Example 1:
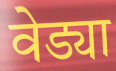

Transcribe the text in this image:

वेड्या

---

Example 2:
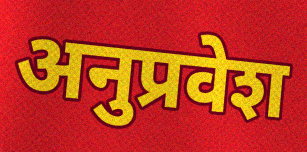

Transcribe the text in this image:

अनुप्रवेश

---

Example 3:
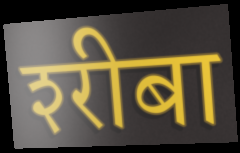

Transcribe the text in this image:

श्रीबा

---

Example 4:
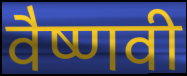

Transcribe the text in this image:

वैष्णवी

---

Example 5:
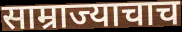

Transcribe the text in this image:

साम्राज्याचाच